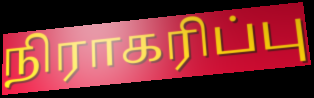
நிராகரிப்பு